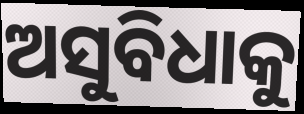
ଅସୁବିଧାକୁ